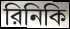
রিনিকি